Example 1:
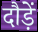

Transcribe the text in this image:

दौड़ें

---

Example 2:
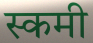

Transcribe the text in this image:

स्कमी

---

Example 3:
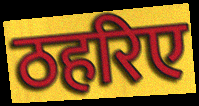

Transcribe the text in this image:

ठहरिए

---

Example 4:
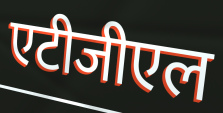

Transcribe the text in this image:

एटीजीएल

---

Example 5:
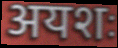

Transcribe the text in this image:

अयशः